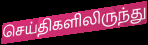
செய்திகளிலிருந்து